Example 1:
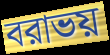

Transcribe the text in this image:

বরাভয়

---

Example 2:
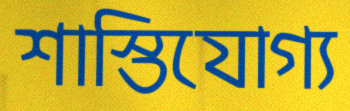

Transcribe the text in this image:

শাস্তিযোগ্য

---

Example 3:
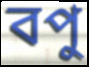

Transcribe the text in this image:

বপু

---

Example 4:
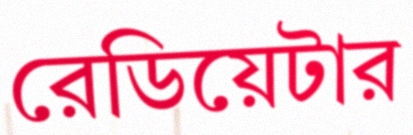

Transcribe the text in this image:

রেডিয়েটার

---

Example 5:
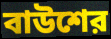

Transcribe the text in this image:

বাউশের